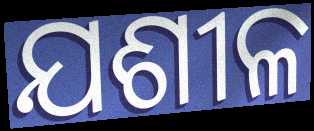
ଯଶୀଳ